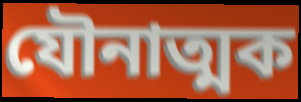
যৌনাত্মক